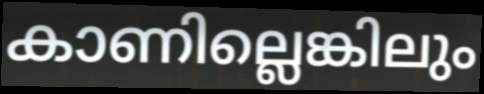
കാണില്ലെങ്കിലും